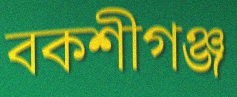
বকশীগঞ্জ